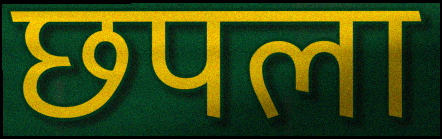
छपला